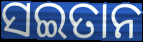
ସଇତାନ